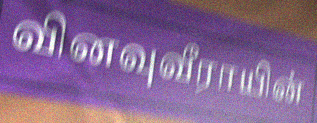
வினவுவீராயின்